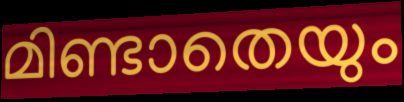
മിണ്ടാതെയും